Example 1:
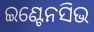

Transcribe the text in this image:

ଇଣ୍ଟେନସିଭ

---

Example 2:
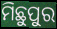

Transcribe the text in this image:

ମିଛୁପୁର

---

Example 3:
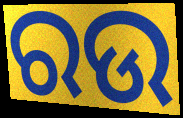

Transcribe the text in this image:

ରଉ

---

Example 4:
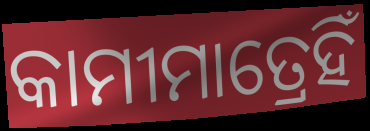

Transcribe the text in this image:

କାମୀମାତ୍ରେହିଁ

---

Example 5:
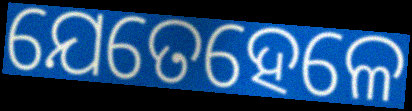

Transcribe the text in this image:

ଯେତେହେଳେ